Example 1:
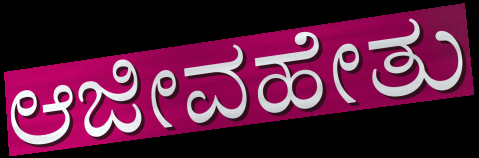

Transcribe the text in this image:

ಆಜೀವಹೇತು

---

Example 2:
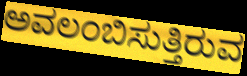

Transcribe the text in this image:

ಅವಲಂಬಿಸುತ್ತಿರುವ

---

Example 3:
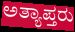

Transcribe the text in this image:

ಅತ್ಯಾಪ್ತರು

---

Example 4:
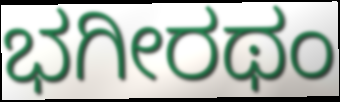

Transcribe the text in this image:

ಭಗೀರಥಂ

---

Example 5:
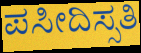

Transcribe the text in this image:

ಪಸೀದಿಸ್ಸತಿ